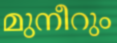
മുനീറും